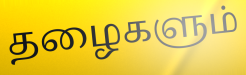
தழைகளும்